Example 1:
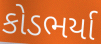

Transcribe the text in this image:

કોડભર્યા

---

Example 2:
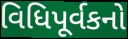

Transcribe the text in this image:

વિધિપૂર્વકનો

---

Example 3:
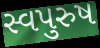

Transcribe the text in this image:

સ્વપુરુષ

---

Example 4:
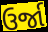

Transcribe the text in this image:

ઉર્જા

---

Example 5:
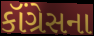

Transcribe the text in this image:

કૉંગ્રેસના